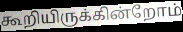
கூறியிருக்கின்றோம்